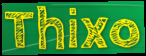
Thixo